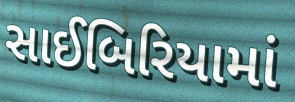
સાઈબિરિયામાં